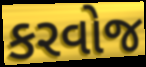
કરવોજ